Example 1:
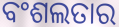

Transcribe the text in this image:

ବଂଶଲତାର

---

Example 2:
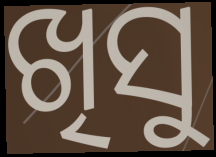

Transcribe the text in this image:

ଖିସୁ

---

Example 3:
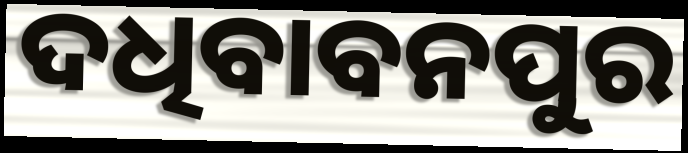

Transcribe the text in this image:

ଦଧିବାବନପୁର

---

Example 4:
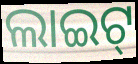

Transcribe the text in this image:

ଲାଇଟ୍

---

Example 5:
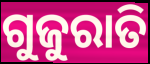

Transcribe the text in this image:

ଗୁଜୁରାତି